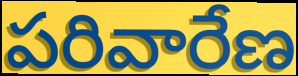
పరివారేణ